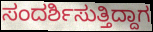
ಸಂದರ್ಶಿಸುತ್ತಿದ್ದಾಗ